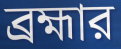
ব্রহ্মার